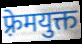
फ़्रेमयुक्त